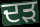
ਦੜ